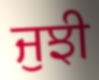
ਜੁਝੀ